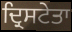
ਦ੍ਰਿਸਟੇਤਾ